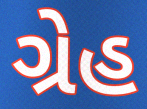
ગ્રેહ